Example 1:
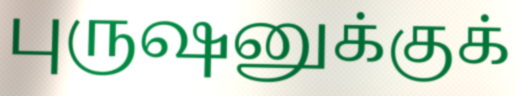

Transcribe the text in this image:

புருஷனுக்குக்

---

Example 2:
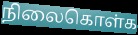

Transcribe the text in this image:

நிலைகொள்க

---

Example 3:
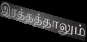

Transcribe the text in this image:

இரத்தத்தாலும்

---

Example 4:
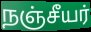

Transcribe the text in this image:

நஞ்சீயர்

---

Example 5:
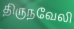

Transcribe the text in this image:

திருநவேலி